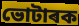
ভোটাৰক